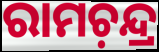
ରାମଚ଼ନ୍ଦ୍ର